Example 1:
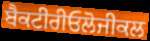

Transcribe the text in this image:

ਬੈਕਟੀਰੀਓਲੋਜੀਕਲ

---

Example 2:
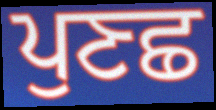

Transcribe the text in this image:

ਪੁਣਛ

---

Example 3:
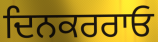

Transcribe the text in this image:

ਦਿਨਕਰਰਾਓ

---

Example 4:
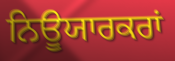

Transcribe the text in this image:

ਨਿਊਯਾਰਕਰਾਂ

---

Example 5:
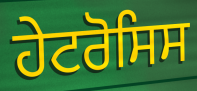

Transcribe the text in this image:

ਹੇਟਰੋਸਿਸ